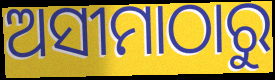
ଅସୀମାଠାରୁ